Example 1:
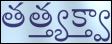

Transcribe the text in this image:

తత్త్యక్త్వా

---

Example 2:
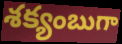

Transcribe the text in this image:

శక్యంబుగా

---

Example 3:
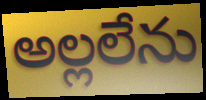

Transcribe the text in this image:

అల్లలేను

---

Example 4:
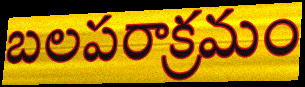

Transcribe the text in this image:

బలపరాక్రమం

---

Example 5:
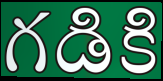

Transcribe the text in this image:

గడికి